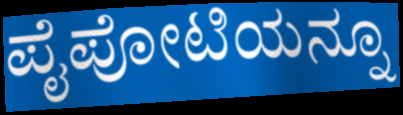
ಪೈಪೋಟಿಯನ್ನೂ